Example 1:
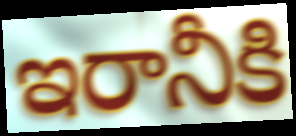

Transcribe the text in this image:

ఇరానీకి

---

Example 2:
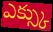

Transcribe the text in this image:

ఎక్స్కు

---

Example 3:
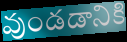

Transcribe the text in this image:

వుండడానికి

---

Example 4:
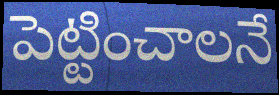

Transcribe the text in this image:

పెట్టించాలనే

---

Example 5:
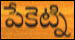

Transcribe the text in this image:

పేకెట్ని